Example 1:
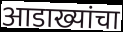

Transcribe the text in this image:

आडाख्यांचा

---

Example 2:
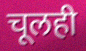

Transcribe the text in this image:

चूलही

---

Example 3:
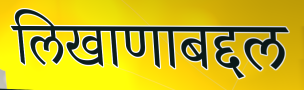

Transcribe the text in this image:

लिखाणाबद्दल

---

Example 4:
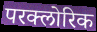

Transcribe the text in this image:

परक्लोरिक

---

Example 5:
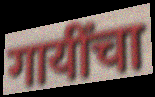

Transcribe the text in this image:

गायींचा